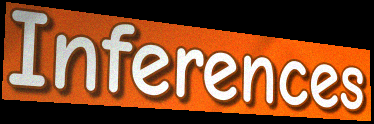
Inferences